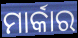
ମାର୍କାର